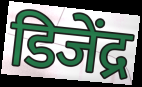
डिजेंद्र